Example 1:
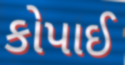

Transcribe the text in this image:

કોપાઈ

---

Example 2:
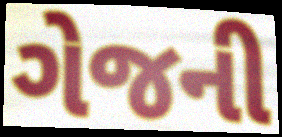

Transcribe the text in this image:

ગેજની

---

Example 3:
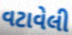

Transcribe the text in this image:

વટાવેલી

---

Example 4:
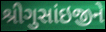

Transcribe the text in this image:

શ્રીગુસાંઇજીને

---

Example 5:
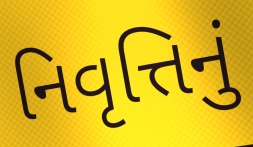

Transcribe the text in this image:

નિવૃત્તિનું